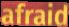
afraid